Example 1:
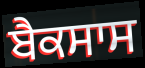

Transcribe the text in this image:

ਬੈਕਸਾਸ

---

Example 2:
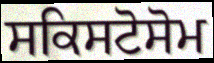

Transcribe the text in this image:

ਸਕਿਸਟੋਸੋਮ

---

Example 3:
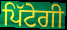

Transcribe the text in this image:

ਪਿੱਟੇਗੀ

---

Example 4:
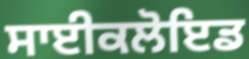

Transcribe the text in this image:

ਸਾਈਕਲੋਇਡ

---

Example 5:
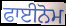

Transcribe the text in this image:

ਫਾਈਨੋਮ